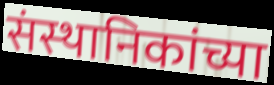
संस्थानिकांच्या